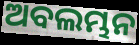
ଅବଲମ୍ଭନ